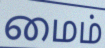
மைம்